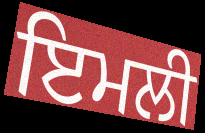
ਇਮਲੀ